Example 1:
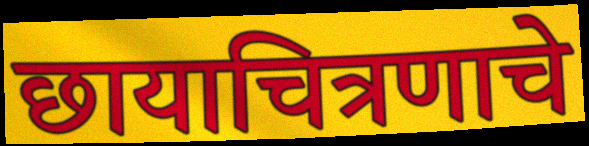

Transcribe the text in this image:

छायाचित्रणाचे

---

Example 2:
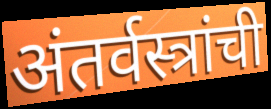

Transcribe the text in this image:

अंतर्वस्त्रांची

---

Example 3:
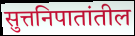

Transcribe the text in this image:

सुत्तनिपातांतील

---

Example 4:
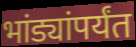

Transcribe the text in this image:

भांड्यांपर्यंत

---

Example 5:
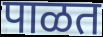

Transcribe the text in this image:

पाळत